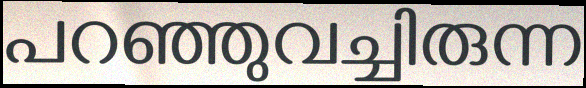
പറഞ്ഞുവച്ചിരുന്ന